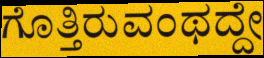
ಗೊತ್ತಿರುವಂಥದ್ದೇ